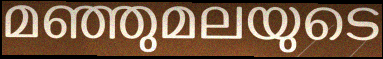
മഞ്ഞുമലയുടെ